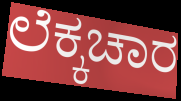
ಲೆಕ್ಕಚಾರ